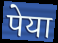
पेया